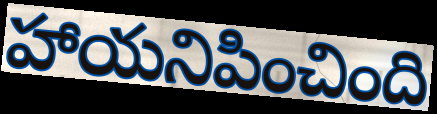
హాయనిపించింది